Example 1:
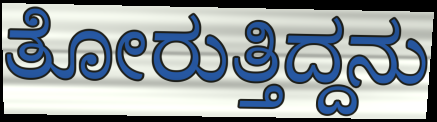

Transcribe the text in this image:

ತೋರುತ್ತಿದ್ದನು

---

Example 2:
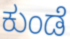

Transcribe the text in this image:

ಕುಂಡೆ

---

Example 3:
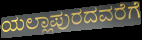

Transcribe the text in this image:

ಯಲ್ಲಾಪುರದವರೆಗೆ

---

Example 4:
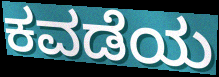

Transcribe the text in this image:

ಕವಡೆಯ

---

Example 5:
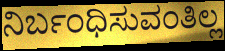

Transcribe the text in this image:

ನಿರ್ಬಂಧಿಸುವಂತಿಲ್ಲ